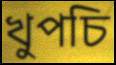
খুপচি